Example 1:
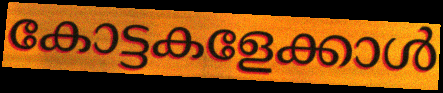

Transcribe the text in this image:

കോട്ടകളേക്കാൾ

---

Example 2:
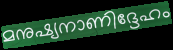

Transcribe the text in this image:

മനുഷ്യനാണിദ്ദേഹം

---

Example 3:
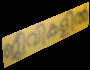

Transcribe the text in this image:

ജീവികളിൽ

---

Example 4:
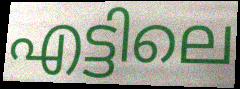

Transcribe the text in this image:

എട്ടിലെ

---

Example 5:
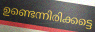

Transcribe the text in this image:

ഉണ്ടെന്നിരിക്കട്ടെ